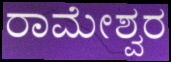
ರಾಮೇಶ್ವರ